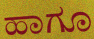
ಹಾಗೂ